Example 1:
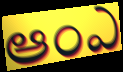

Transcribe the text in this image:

ఆంఎ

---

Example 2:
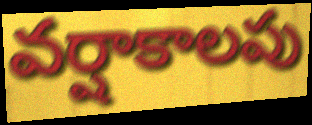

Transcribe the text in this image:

వర్షాకాలపు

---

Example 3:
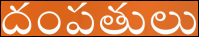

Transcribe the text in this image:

దంపతులు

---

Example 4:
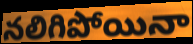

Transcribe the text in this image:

నలిగిపోయినా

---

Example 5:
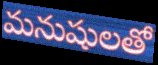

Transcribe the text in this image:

మనుషులతో